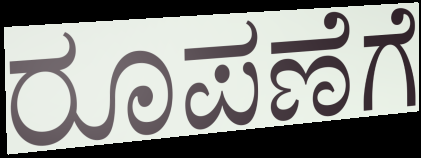
ರೂಪಣೆಗೆ